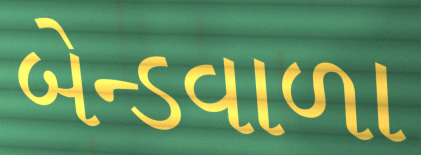
બેન્ડવાળા